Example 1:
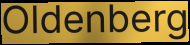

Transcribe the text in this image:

Oldenberg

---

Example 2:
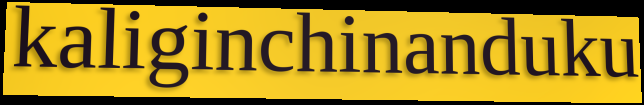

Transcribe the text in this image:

kaliginchinanduku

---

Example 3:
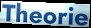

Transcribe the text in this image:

Theorie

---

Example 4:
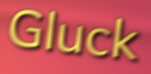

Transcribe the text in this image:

Gluck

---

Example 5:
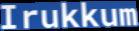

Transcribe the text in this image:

Irukkum